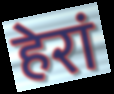
हेरां